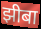
झीबा